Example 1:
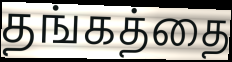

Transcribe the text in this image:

தங்கத்தை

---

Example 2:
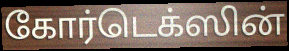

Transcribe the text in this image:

கோர்டெக்ஸின்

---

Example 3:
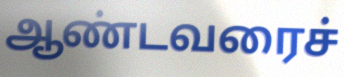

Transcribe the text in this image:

ஆண்டவரைச்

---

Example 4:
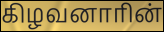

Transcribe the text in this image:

கிழவனாரின்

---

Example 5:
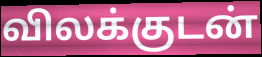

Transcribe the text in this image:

விலக்குடன்